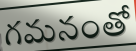
గమనంతో